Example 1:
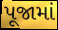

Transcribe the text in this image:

પૂજામાં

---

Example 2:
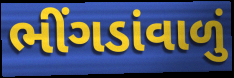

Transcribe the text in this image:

ભીંગડાંવાળું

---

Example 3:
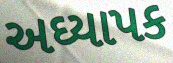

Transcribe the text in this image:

અઘ્યાપક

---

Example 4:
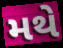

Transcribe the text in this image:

મથે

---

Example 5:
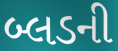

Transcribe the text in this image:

બ્લડની